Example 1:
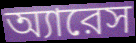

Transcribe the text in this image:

অ্যারেস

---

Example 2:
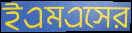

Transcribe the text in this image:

ইএমএসের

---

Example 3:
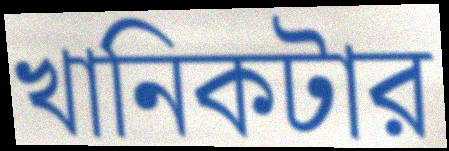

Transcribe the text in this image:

খানিকটার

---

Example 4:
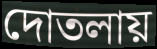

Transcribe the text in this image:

দোতলায়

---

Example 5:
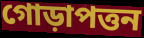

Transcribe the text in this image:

গোড়াপত্তন